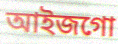
আইজগো